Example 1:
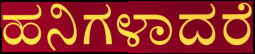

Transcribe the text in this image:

ಹನಿಗಳಾದರೆ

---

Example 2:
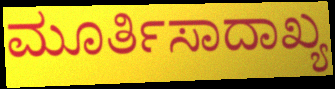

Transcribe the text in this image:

ಮೂರ್ತಿಸಾದಾಖ್ಯ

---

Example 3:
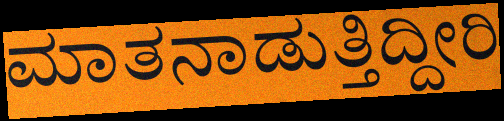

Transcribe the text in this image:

ಮಾತನಾಡುತ್ತಿದ್ದೀರಿ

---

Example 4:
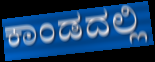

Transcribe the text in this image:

ಕಾಂಡದಲ್ಲಿ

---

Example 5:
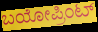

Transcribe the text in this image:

ಬಯೋಪ್ರಿಂಟ್